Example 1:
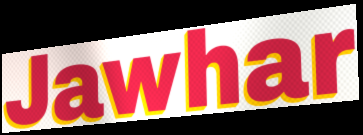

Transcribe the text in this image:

Jawhar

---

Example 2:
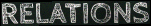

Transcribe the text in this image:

RELATIONS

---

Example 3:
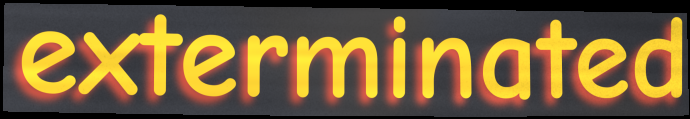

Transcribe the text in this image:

exterminated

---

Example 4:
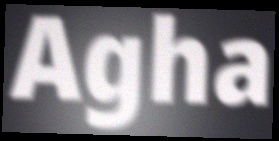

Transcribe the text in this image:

Agha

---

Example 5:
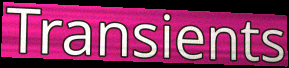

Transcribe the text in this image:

Transients